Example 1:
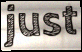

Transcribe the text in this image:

just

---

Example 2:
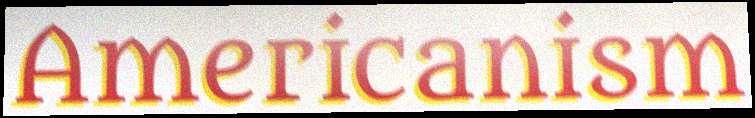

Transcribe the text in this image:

Americanism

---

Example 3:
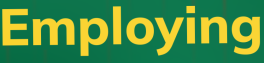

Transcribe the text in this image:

Employing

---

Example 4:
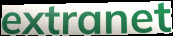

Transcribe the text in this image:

extranet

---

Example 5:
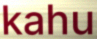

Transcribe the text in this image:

kahu